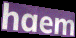
haem